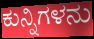
ಕುನ್ನಿಗಳನು